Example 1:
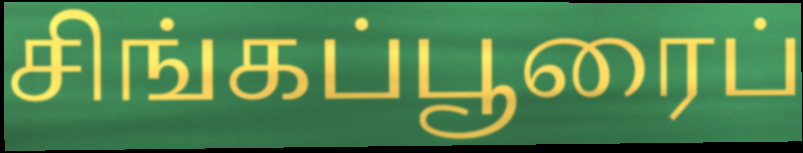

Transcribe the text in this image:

சிங்கப்பூரைப்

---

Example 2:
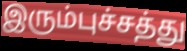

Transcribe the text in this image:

இரும்புச்சத்து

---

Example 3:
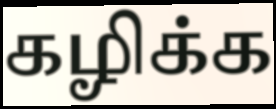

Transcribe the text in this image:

கழிக்க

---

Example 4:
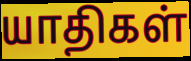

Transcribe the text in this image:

யாதிகள்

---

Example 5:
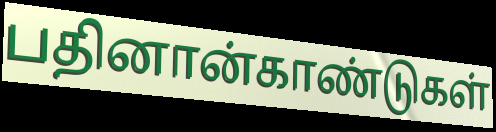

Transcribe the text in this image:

பதினான்காண்டுகள்